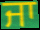
ਜਾ